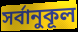
সর্বানুকূল